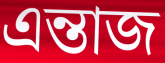
এন্তাজ